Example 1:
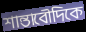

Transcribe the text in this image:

শান্তাবৌদিকে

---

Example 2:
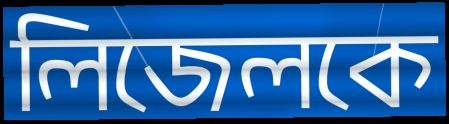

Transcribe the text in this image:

লিজেলকে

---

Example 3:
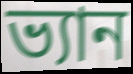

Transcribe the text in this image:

ভ্যান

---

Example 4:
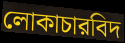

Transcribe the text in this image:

লোকাচারবিদ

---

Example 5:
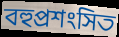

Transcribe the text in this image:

বহুপ্রশংসিত